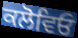
ਕਲੋਵਿਓ